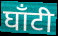
घाँटी